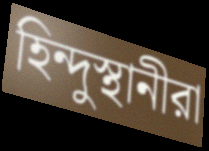
হিন্দুস্থানীরা